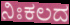
ನಿಃಕಲದ